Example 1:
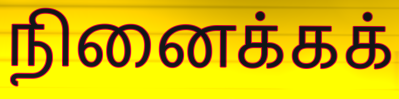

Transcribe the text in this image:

நினைக்கக்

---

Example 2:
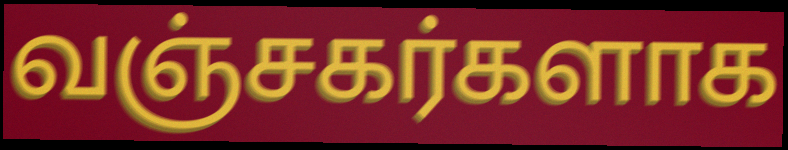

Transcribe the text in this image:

வஞ்சகர்களாக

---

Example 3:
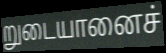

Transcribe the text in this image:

றுடையானைச்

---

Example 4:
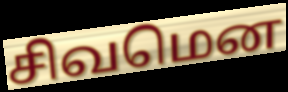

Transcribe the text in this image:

சிவமென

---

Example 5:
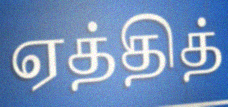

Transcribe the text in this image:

ஏத்தித்